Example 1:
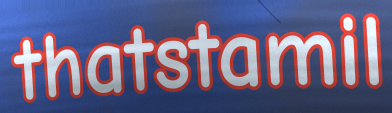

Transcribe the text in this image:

thatstamil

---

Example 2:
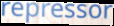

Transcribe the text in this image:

repressor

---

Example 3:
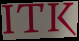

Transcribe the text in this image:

ITK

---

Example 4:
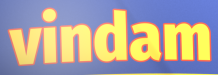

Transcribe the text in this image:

vindam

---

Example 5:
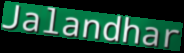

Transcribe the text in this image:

Jalandhar